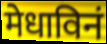
मेधाविनं